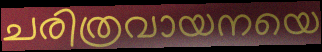
ചരിത്രവായനയെ